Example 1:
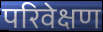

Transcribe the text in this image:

परिवेक्षण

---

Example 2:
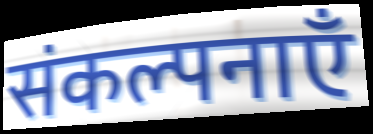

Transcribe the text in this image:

संकल्पनाएँ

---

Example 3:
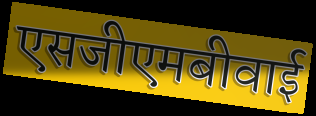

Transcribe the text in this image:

एसजीएमबीवाई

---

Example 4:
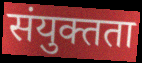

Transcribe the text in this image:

संयुक्तता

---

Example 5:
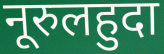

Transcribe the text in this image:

नूरुलहुदा